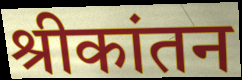
श्रीकांतन